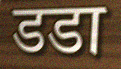
डडा